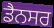
ਡੈਨਸਰ